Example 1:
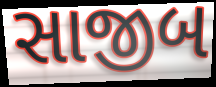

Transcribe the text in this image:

સાજીબ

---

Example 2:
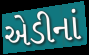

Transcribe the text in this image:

એડીનાં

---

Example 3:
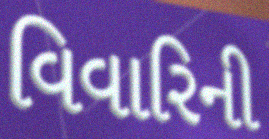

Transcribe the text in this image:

વિવારિની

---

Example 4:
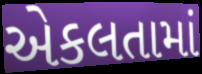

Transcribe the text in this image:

એકલતામાં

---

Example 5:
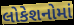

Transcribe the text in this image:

લોકેશનોમાં